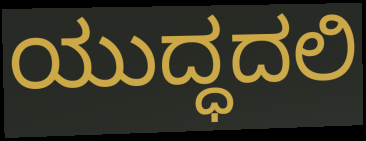
ಯುದ್ಧದಲಿ